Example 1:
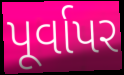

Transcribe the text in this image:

પૂર્વાપર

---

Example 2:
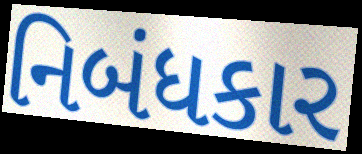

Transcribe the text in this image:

નિબંધકાર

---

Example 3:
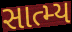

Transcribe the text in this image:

સાત્મ્ય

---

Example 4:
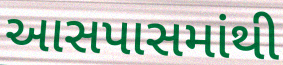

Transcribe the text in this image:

આસપાસમાંથી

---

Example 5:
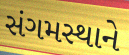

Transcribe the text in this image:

સંગમસ્થાને